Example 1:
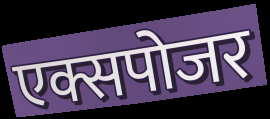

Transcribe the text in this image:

एक्सपोजर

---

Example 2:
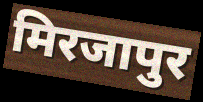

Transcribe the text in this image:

मिरजापुर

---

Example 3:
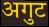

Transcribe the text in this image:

अगुट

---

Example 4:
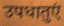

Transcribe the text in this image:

उपधातुएं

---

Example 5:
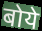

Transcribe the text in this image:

बोये